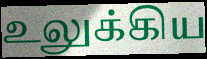
உலுக்கிய